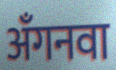
अँगनवा